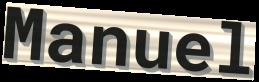
Manuel